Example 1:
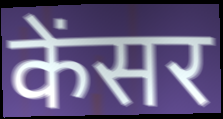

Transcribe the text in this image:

केंसर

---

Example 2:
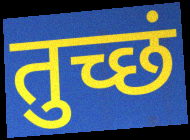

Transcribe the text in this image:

तुच्छं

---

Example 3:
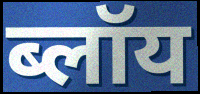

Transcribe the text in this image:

ब्लॉय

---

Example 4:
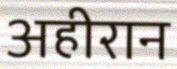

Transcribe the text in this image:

अहीरान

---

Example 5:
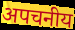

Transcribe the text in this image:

अपचनीय